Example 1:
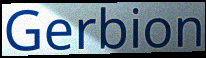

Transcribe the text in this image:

Gerbion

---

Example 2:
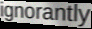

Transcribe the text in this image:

ignorantly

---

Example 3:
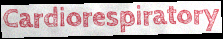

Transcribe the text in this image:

Cardiorespiratory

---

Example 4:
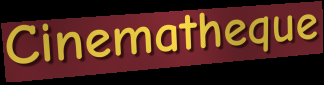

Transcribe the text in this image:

Cinematheque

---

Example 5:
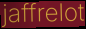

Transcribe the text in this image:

jaffrelot